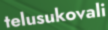
telusukovali